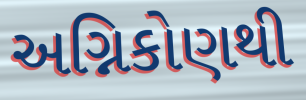
અગ્નિકોણથી